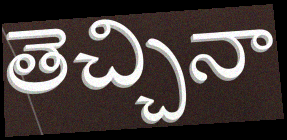
తెచ్చినా